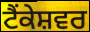
ਟੈਂਕੇਸ਼ਵਰ